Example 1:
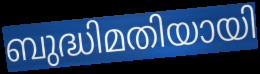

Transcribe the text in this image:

ബുദ്ധിമതിയായി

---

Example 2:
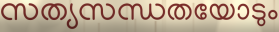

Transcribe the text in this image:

സത്യസന്ധതയോടും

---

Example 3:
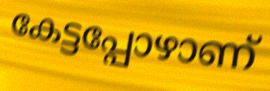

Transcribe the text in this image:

കേട്ടപ്പോഴാണ്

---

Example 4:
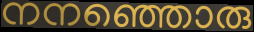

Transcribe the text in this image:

നനഞ്ഞൊരു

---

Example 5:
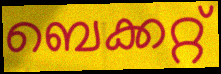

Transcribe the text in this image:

ബെക്കറ്റ്